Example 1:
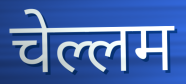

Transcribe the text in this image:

चेल्लम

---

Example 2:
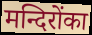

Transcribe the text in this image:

मन्दिरोंका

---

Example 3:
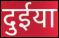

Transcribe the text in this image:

दुईया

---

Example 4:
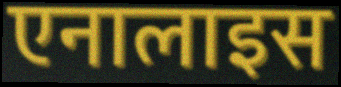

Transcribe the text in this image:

एनालाइस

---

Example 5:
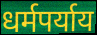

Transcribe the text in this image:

धर्मपर्याय